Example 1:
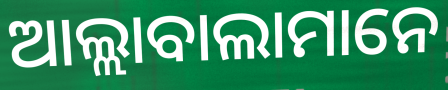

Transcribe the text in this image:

ଆଲ୍ଲାବାଲାମାନେ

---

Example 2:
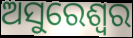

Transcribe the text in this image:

ଅସୁରେଶ୍ୱର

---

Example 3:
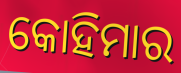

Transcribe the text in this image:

କୋହିମାର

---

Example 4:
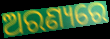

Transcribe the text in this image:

ଅରଣ୍ୟରେ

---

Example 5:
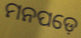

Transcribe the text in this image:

ମନପଡ଼େ